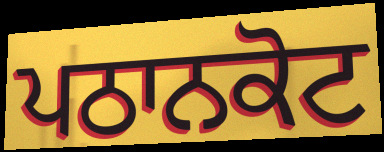
ਪਠਾਨਕੋਟ